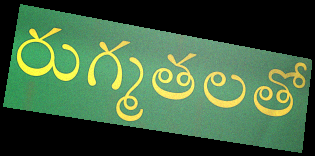
రుగ్మతలతో